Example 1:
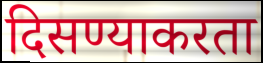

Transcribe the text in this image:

दिसण्याकरता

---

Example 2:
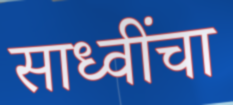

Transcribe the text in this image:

साध्वींचा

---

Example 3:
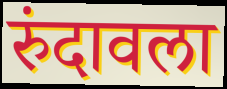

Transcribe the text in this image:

रुंदावला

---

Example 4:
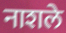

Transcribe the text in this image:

नाशले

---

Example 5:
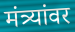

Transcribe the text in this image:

मंत्र्यांवर